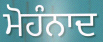
ਮੋਹੰਨਾਦ